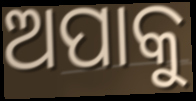
ଅପାକୁ